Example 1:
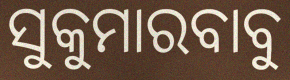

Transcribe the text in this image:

ସୁକୁମାରବାବୁ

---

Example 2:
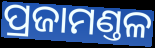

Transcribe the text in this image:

ପ୍ରଜାମଣ୍ତଳ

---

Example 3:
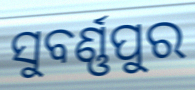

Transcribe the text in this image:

ସୁବର୍ଣ୍ଣପୁର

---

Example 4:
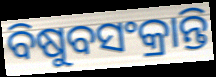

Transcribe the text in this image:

ବିଷୁବସଂକ୍ରାନ୍ତି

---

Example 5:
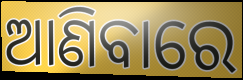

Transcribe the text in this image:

ଆଣିବାରେ